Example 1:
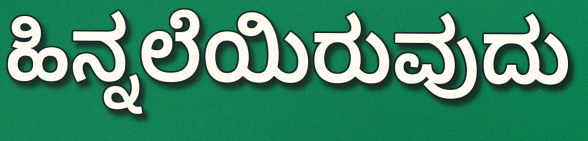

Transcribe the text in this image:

ಹಿನ್ನಲೆಯಿರುವುದು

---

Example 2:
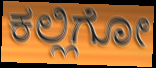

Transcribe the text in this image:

ಕಲ್ಲಿಗೋ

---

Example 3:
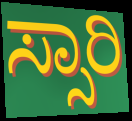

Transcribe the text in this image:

ಸ್ಸಾರಿ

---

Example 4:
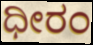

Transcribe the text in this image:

ಧೀರಂ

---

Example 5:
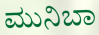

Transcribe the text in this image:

ಮುನಿಬಾ